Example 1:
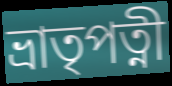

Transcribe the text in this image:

ভ্রাতৃপত্নী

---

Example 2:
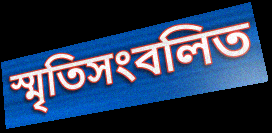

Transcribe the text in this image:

স্মৃতিসংবলিত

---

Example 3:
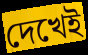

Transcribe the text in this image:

দেখেই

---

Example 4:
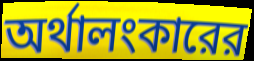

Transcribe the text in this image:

অর্থালংকারের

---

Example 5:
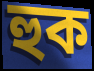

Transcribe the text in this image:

হুক